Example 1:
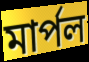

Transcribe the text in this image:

মার্পল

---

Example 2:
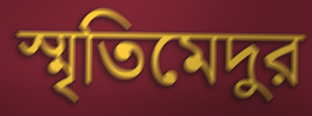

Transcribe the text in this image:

স্মৃতিমেদুর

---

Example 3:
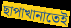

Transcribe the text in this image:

ছাপাখানাতেই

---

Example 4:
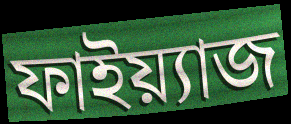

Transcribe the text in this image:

ফাইয়্যাজ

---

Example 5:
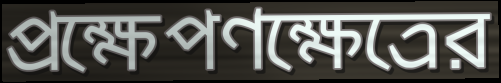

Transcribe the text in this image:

প্রক্ষেপণক্ষেত্রের